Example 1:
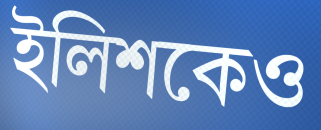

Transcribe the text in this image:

ইলিশকেও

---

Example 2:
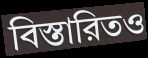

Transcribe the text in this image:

বিস্তারিতও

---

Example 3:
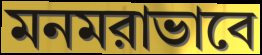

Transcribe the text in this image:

মনমরাভাবে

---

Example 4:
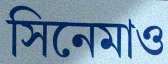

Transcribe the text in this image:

সিনেমাও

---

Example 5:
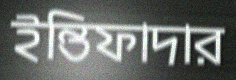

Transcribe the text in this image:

ইন্তিফাদার